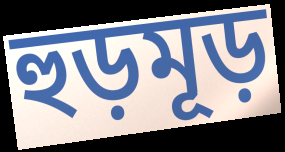
হুড়মূড়